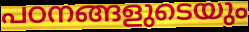
പഠനങ്ങളുടെയും